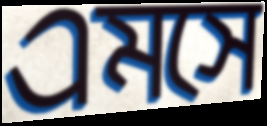
এমসে